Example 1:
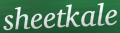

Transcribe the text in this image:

sheetkale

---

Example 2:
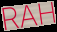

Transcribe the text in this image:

RAH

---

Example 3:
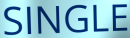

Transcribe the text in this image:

SINGLE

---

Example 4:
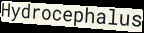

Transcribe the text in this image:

Hydrocephalus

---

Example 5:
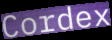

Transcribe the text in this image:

Cordex